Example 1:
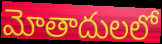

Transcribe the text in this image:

మోతాదులలో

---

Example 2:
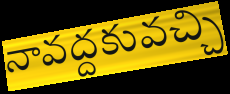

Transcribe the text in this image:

నావద్దకువచ్చి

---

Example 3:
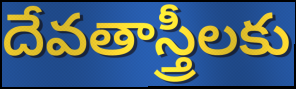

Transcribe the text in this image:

దేవతాస్త్రీలకు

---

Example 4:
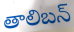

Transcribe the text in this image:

తాలిబన్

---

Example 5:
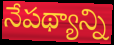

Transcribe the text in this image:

నేపథ్యాన్ని